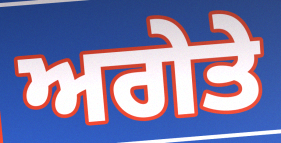
ਅਗੇਤੇ